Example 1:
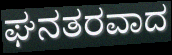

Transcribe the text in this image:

ಘನತರವಾದ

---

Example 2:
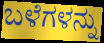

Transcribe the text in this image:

ಬಳೆಗಳನ್ನು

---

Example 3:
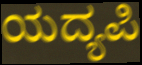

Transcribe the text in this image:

ಯದ್ಯಪಿ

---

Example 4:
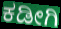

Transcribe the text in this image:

ಕಡೀಗಿ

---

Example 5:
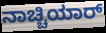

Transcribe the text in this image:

ನಾಚ್ಚಿಯಾರ್